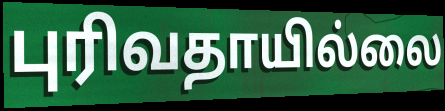
புரிவதாயில்லை